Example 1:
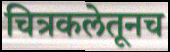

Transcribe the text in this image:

चित्रकलेतूनच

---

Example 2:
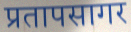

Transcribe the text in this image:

प्रतापसागर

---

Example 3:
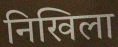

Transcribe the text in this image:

निखिला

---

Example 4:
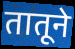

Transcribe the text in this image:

तातूने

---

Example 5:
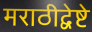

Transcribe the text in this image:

मराठीद्वेष्टे